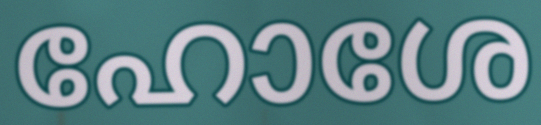
ഹോശേ